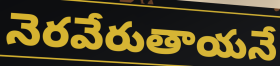
నెరవేరుతాయనే